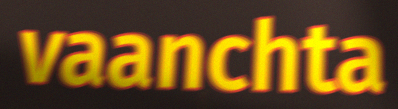
vaanchta